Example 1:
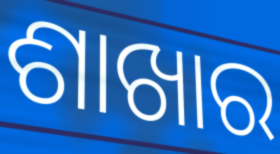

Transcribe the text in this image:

ଶାଖାର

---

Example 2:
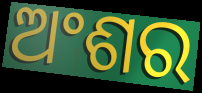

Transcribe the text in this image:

ଅଂଶର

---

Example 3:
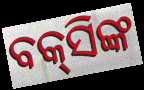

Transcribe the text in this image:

ବକ୍‌ସିଙ୍କ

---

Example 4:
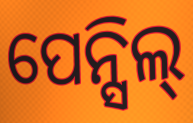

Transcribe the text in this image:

ପେନ୍ସିଲ୍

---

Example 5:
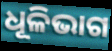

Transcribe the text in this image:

ଧୂଳିଭାଗ